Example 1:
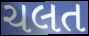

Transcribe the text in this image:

ચલત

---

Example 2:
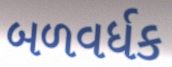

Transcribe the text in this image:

બળવર્ધક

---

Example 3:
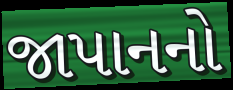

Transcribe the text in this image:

જાપાનનો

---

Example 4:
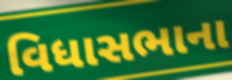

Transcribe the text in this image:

વિધાસભાના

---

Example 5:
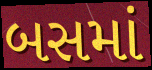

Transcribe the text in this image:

બસમાં